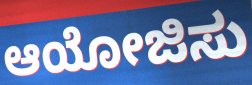
ಆಯೋಜಿಸು